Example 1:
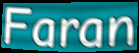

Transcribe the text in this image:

Faran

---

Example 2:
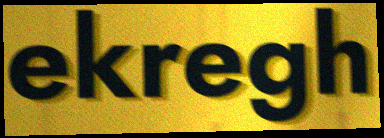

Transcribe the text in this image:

ekregh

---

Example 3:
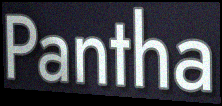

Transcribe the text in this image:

Pantha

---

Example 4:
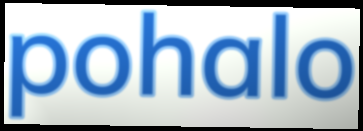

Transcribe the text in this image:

pohalo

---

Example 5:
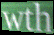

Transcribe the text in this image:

wth